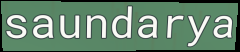
saundarya